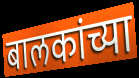
बालकांच्या